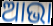
ଆଭା